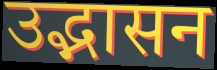
उद्भासन